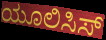
ಯೂಲಿಸಿಸ್